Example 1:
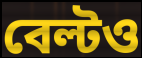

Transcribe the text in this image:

বেল্টও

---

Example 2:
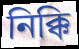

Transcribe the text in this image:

নিক্কি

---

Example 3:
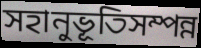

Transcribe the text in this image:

সহানুভূতিসম্পন্ন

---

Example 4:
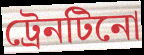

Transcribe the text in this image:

ট্রেনটিনো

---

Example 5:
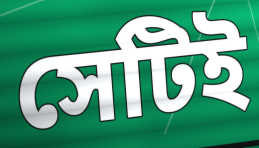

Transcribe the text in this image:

সেটিই